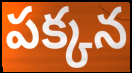
పక్కన